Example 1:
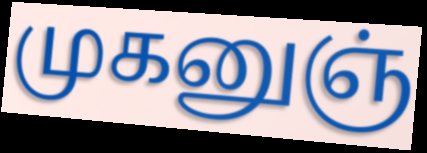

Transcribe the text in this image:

முகனுஞ்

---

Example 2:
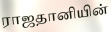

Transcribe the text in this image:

ராஜதானியின்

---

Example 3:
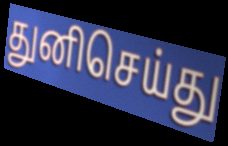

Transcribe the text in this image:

துனிசெய்து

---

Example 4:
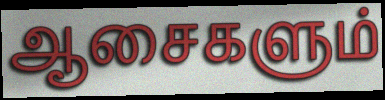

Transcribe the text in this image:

ஆசைகளும்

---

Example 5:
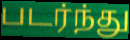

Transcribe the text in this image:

படர்ந்து